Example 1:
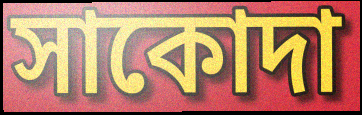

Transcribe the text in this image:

সাকোদা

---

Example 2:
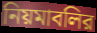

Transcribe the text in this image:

নিয়মাবলির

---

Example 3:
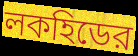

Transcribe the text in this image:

লকহিডের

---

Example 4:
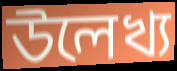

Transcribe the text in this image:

উলেখ্য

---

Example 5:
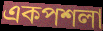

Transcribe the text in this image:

একপশলা